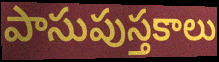
పాసుపుస్తకాలు